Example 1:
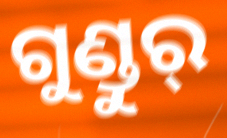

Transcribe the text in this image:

ଗୁଣ୍ଡୁର୍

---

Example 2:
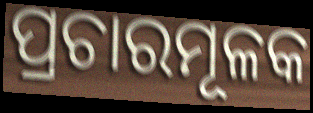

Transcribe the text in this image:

ପ୍ରଚାରମୂଳକ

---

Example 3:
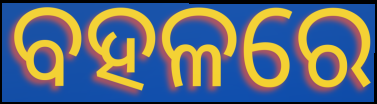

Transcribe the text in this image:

ବହଳରେ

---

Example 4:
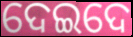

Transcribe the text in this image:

ଦେଇଦେ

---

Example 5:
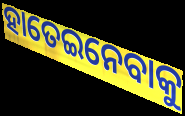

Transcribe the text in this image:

ହାତେଇନେବାକୁ